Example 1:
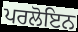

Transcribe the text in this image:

ਪਰਲੋਇਨ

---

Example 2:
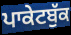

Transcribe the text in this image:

ਪਾਕੇਟਬੁੱਕ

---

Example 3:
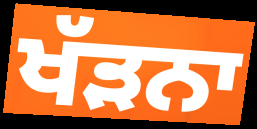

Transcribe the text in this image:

ਖੱੜਨਾ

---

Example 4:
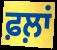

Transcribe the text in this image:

ਫ਼ਲ਼ਾਂ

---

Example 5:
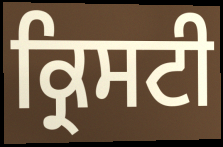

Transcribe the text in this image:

ਕ੍ਰਿਸਟੀ